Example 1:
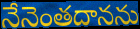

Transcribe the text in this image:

నేనెంతదానను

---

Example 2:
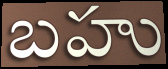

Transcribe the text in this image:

బహు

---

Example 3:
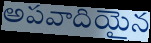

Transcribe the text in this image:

అపవాదియైన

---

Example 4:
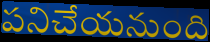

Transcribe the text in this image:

పనిచేయనుంది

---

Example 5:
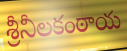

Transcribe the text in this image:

శ్రీనీలకంఠాయ